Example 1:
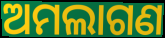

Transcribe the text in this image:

ଅମଲାଗଣ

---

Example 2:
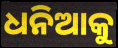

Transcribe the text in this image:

ଧନିଆକୁ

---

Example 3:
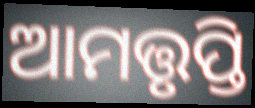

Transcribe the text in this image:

ଆମତ୍ତୃପ୍ତି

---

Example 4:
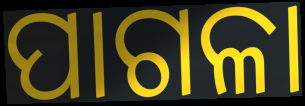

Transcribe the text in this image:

ପାଗଳା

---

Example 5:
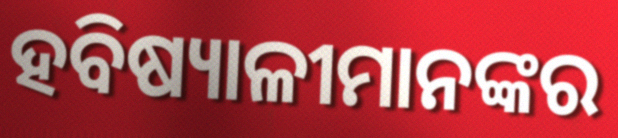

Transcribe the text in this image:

ହବିଷ୍ୟାଳୀମାନଙ୍କର